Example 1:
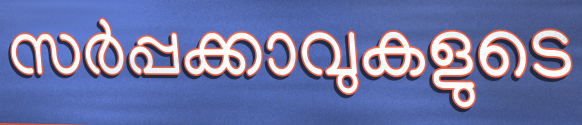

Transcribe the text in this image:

സർപ്പക്കാവുകളുടെ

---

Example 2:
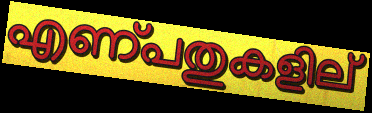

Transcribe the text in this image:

എണ്പതുകളില്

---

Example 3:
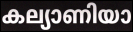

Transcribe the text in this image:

കല്യാണിയാ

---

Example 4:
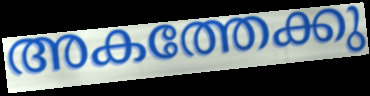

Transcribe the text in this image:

അകത്തേക്കു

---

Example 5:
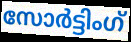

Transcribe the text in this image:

സോർട്ടിംഗ്